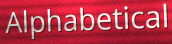
Alphabetical